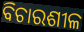
ବିଚାରଶୀଳ